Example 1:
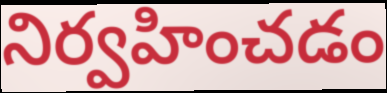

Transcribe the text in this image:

నిర్వహించడం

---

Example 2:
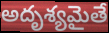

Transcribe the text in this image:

అదృశ్యమైతే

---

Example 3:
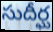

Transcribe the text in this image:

సుదీర్ఘ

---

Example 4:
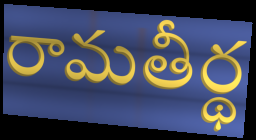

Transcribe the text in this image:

రామతీర్థ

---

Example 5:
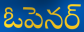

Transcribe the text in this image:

ఓపెనర్